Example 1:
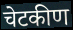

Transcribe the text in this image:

चेटकीण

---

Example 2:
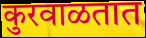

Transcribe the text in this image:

कुरवाळतात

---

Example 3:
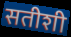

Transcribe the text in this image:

सतीशी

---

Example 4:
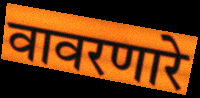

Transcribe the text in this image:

वावरणारे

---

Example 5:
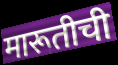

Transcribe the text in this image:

मारूतीची